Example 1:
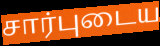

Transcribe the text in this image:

சார்புடைய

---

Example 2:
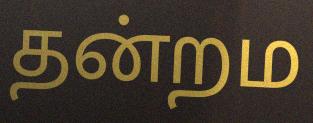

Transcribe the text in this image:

தன்றம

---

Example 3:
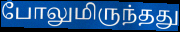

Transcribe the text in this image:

போலுமிருந்தது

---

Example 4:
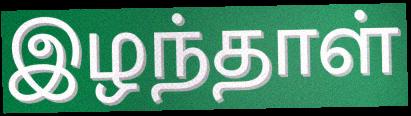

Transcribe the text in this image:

இழந்தாள்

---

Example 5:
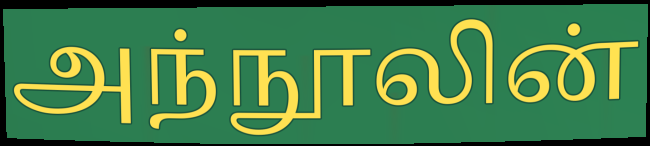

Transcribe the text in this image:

அந்நூலின்